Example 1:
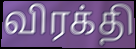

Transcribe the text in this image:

விரக்தி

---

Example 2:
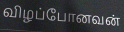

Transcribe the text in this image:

விழப்போனவன்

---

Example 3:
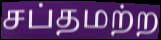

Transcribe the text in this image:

சப்தமற்ற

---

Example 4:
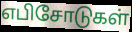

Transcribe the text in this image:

எபிசோடுகள்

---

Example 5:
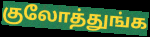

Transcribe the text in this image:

குலோத்துங்க